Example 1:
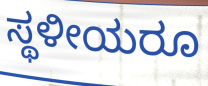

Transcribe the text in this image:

ಸ್ಥಳೀಯರೂ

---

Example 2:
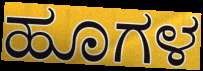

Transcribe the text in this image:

ಹೂಗಳ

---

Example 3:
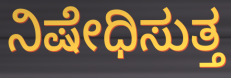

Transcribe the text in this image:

ನಿಷೇಧಿಸುತ್ತ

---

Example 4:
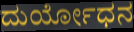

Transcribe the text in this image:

ದುರ್ಯೋಧನ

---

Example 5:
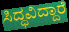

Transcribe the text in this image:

ಸಿದ್ಧವಿದ್ದಾರೆ